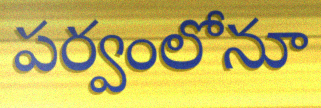
పర్వంలోనూ